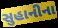
સુહાનીના